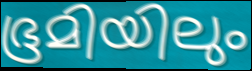
ഭൂമിയിലും